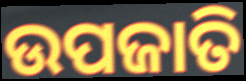
ଉପଜାତି